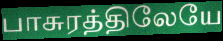
பாசுரத்திலேயே